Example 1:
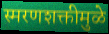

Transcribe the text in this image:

स्मरणशक्तीमुळे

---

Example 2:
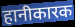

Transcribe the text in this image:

हानीकारक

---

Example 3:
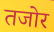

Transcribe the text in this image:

तजोर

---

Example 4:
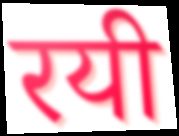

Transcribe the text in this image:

रयी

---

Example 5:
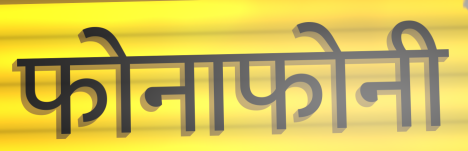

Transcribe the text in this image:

फोनाफोनी